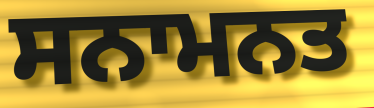
ਸਨਾਮਨਤ